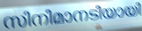
സിനിമാനടിയായി